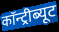
कॉन्ट्रीब्यूट